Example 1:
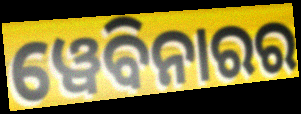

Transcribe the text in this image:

ୱେବିନାରର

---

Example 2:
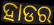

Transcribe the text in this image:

ହାଡର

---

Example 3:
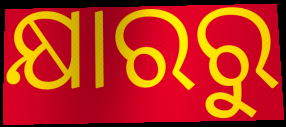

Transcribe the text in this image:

କ୍ଷାରରୁ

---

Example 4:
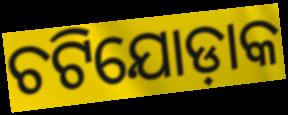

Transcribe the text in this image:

ଚଟିଯୋଡ଼ାକ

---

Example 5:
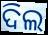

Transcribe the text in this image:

ଦିଲ